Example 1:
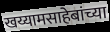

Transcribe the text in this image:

खय्यामसाहेबांच्या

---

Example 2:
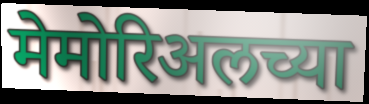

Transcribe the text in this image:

मेमोरिअलच्या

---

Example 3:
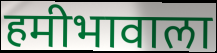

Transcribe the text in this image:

हमीभावाला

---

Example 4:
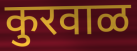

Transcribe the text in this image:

कुरवाळ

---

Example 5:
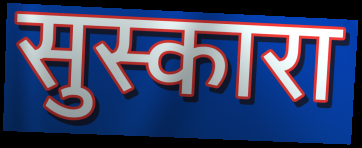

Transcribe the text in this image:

सुस्कारा